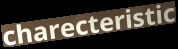
charecteristic